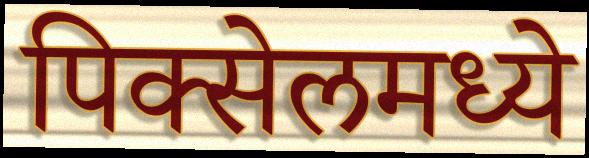
पिक्सेलमध्ये